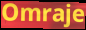
Omraje